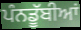
ਪੰਨਡੂੱਬੀਆਂ